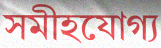
সমীহযোগ্য